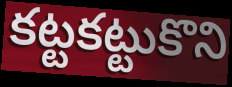
కట్టకట్టుకొని